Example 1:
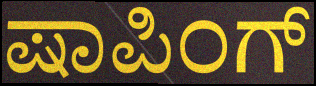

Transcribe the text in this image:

ಷಾಪಿಂಗ್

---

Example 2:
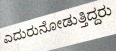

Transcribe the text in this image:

ಎದುರುನೋಡುತ್ತಿದ್ದರು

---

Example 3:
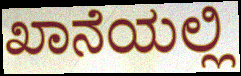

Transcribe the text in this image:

ಖಾನೆಯಲ್ಲಿ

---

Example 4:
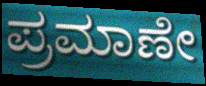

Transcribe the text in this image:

ಪ್ರಮಾಣೇ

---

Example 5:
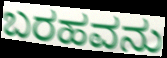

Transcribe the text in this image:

ಬರಹವನು